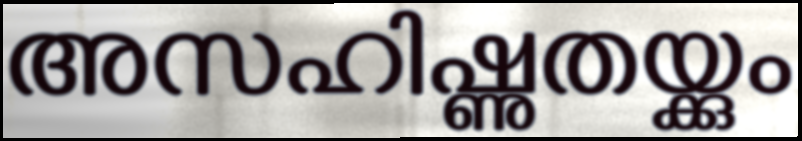
അസഹിഷ്ണുതയ്ക്കും